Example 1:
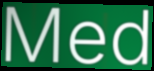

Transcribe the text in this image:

Med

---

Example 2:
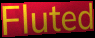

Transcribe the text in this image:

Fluted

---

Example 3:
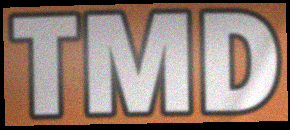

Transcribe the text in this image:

TMD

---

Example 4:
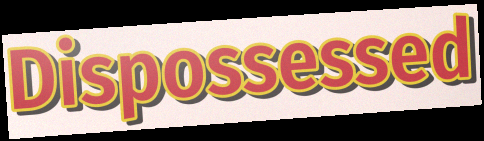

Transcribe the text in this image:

Dispossessed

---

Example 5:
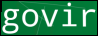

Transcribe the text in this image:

govir